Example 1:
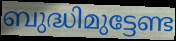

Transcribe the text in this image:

ബുദ്ധിമുട്ടേണ്ട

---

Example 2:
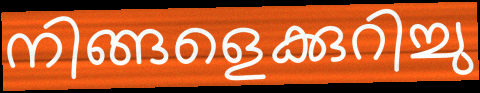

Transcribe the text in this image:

നിങ്ങളെക്കുറിച്ചു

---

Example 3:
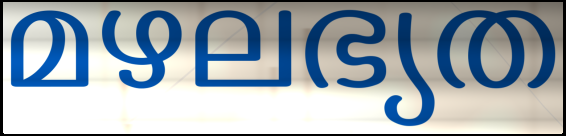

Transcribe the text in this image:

മഴലഭ്യത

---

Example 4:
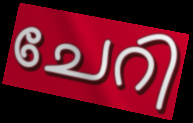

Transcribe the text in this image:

ചേറി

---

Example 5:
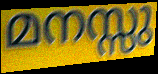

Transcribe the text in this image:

മനസ്സു